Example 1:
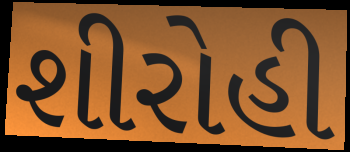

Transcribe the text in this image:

શીરોહી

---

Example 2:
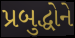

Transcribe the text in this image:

પ્રબુદ્ધોને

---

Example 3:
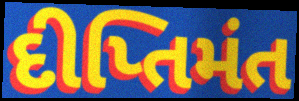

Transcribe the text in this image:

દીપ્તિમંત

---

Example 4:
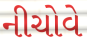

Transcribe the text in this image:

નીચોવે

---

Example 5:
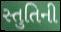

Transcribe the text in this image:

સ્તુતિની